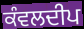
ਕੰਵਲਦੀਪ